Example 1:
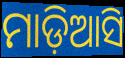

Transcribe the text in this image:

ମାଡ଼ିଆସି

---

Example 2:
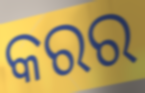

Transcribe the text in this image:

କରର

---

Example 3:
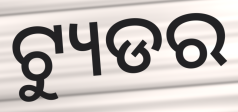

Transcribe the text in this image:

ଟ୍ୟୁଡର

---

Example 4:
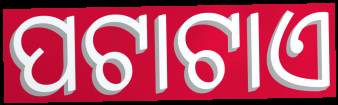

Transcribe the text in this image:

ପଟାଟାଏ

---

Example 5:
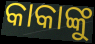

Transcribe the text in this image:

କାକାଙ୍କୁ